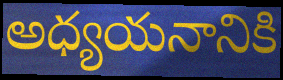
అధ్యయనానికి